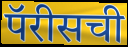
पॅरीसची